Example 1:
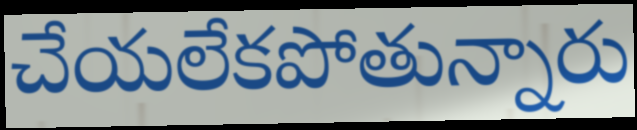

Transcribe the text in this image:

చేయలేకపోతున్నారు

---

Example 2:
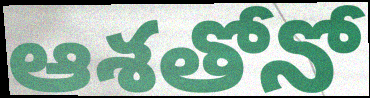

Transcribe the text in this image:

ఆశతోనో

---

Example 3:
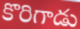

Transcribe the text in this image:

కొరిగాడు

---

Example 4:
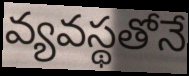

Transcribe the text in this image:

వ్యవస్థతోనే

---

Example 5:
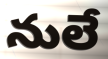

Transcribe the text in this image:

నులే